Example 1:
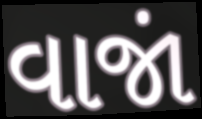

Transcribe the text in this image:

વાજાં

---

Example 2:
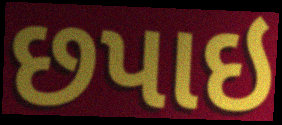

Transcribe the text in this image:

છપાઇ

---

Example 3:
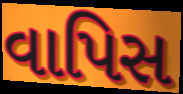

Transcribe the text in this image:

વાપિસ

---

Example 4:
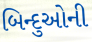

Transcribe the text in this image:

બિન્દુઓની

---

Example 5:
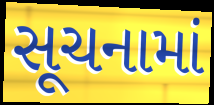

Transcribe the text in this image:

સૂચનામાં